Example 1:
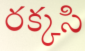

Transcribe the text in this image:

రక్కసి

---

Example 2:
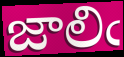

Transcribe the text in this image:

జాలిఁ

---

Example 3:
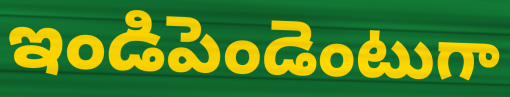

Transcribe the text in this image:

ఇండిపెండెంటుగా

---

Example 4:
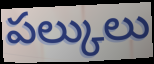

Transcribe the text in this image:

పల్కులు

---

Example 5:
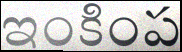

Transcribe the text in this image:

ఇంకింప